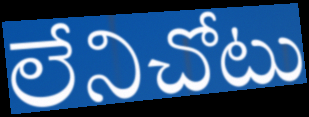
లేనిచోటు